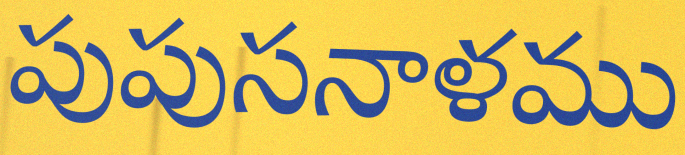
పుపుసనాళము